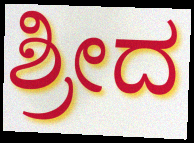
ಶ್ರೀದ